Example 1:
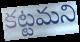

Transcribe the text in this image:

కట్టమని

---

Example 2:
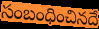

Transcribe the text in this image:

సంబంధించినదే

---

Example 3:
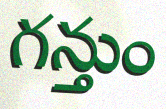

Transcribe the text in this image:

గన్తుం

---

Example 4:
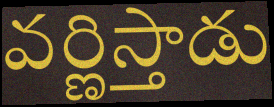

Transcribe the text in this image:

వర్ణిస్తాడు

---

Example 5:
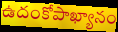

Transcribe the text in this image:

ఉదంకోపాఖ్యానం